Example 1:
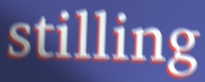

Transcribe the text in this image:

stilling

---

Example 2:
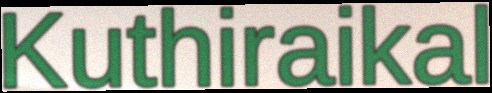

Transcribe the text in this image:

Kuthiraikal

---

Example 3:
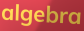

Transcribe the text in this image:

algebra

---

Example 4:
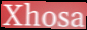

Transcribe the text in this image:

Xhosa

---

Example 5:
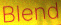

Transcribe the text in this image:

Blend